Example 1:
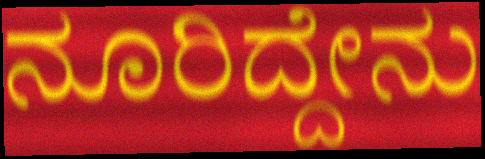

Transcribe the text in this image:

ನೂರಿದ್ದೇನು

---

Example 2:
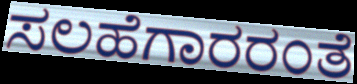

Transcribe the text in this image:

ಸಲಹೆಗಾರರಂತೆ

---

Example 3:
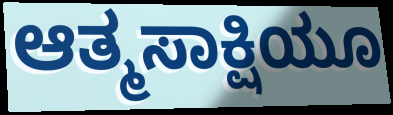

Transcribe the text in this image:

ಆತ್ಮಸಾಕ್ಷಿಯೂ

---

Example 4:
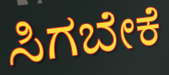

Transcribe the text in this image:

ಸಿಗಬೇಕೆ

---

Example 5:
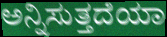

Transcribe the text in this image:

ಅನ್ನಿಸುತ್ತದೆಯಾ